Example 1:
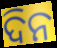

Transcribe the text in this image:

ଦିନ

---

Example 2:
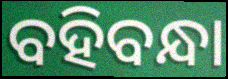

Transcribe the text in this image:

ବହିବନ୍ଧା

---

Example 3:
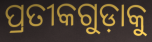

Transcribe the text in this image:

ପ୍ରତୀକଗୁଡ଼ାକୁ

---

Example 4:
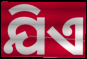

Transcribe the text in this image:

ଯିଏ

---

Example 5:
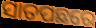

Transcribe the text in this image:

ସାତପଛରେ